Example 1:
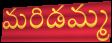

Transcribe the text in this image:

మరిడమ్మ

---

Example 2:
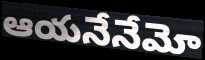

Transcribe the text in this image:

ఆయనేనేమో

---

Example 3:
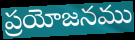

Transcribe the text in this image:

ప్రయోజనము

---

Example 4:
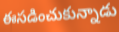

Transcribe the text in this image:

ఈసడించుకున్నాడు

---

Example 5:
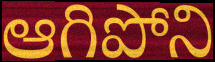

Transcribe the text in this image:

ఆగిపోని